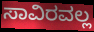
ಸಾವಿರವಲ್ಲ